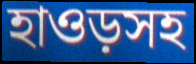
হাওড়সহ